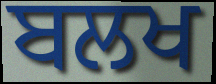
ਬਲਖ